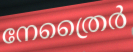
നേത്രൈർ